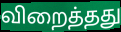
விறைத்தது